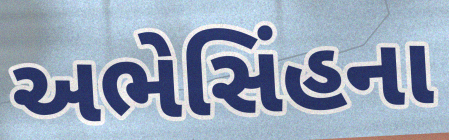
અભેસિંહના